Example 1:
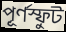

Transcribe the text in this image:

পূর্ণস্ফুট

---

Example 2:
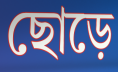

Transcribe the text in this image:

ছোড়ে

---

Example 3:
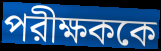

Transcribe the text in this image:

পরীক্ষককে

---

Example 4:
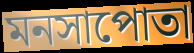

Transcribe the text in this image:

মনসাপোতা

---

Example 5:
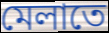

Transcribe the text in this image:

মেলাতে